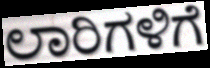
ಲಾರಿಗಳಿಗೆ